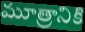
మూత్రానికి